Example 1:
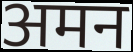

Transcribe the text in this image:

अमन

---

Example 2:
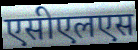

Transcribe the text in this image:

एसीएलएस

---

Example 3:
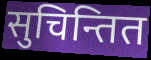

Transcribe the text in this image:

सुचिन्तित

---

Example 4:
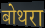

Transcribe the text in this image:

बोथरा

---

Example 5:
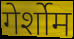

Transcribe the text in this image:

गेर्शोम